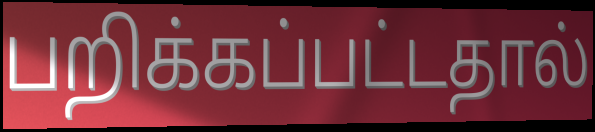
பறிக்கப்பட்டதால்